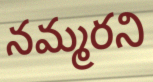
నమ్మరని